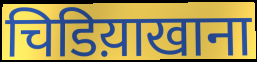
चिडिय़ाखाना